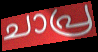
ചാപ്ര